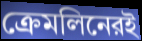
ক্রেমলিনেরই